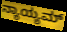
ನ್ಯಾಯ್ಯಮ್